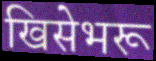
खिसेभरू